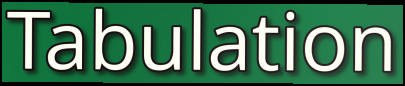
Tabulation